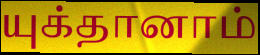
யுக்தானாம்